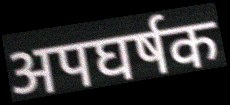
अपघर्षक